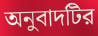
অনুবাদটির